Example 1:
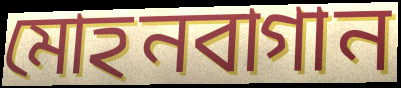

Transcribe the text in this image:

মোহনবাগান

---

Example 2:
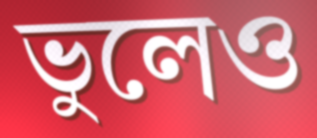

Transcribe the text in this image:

ভুলেও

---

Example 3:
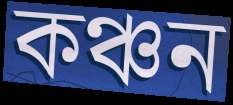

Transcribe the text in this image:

কঞ্চন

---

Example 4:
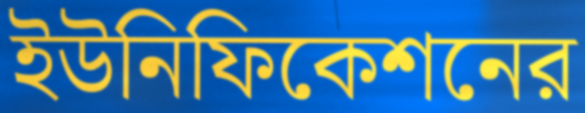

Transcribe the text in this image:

ইউনিফিকেশনের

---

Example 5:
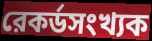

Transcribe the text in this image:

রেকর্ডসংখ্যক